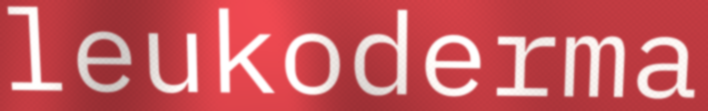
leukoderma